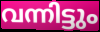
വന്നിട്ടും